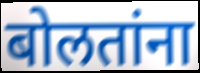
बोलतांना